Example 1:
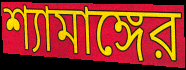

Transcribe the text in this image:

শ্যামাঙ্গের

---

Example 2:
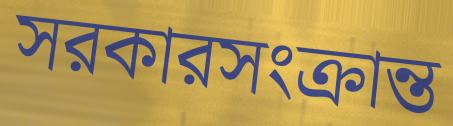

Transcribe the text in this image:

সরকারসংক্রান্ত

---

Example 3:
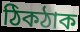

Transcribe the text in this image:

ঠিকঠাক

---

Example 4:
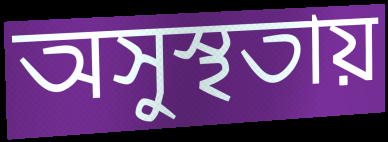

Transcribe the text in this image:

অসুস্থতায়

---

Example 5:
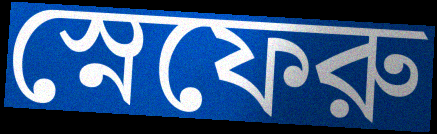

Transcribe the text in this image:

স্নেফেরু